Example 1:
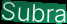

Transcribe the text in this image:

Subra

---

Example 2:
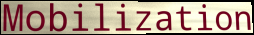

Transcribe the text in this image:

Mobilization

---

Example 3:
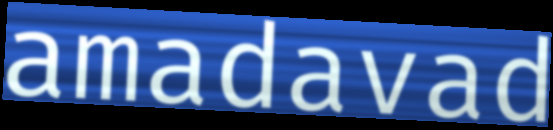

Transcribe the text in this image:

amadavad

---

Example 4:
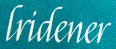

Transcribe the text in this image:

lridener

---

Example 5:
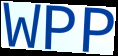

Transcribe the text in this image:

WPP